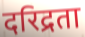
दरिद्रता